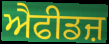
ਐਫੀਡਜ਼